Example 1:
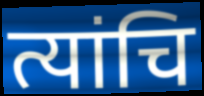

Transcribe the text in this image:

त्यांचि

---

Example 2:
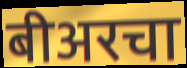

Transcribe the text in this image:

बीअरचा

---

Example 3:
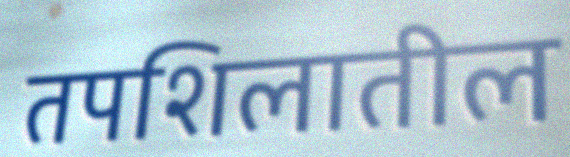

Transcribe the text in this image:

तपशिलातील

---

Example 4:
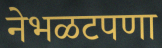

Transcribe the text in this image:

नेभळटपणा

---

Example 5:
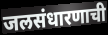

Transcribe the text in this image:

जलसंधारणाची